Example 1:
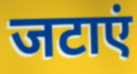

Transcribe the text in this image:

जटाएं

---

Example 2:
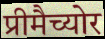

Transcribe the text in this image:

प्रीमैच्योर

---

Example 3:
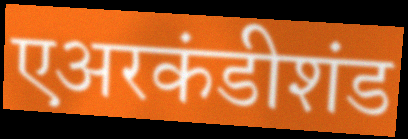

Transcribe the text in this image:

एअरकंडीशंड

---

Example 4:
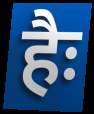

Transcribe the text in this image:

हैः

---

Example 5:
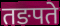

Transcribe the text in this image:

तङपते